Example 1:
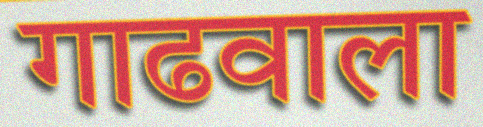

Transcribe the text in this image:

गाढवाला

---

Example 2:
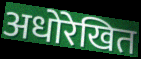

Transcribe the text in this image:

अधोरेखित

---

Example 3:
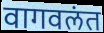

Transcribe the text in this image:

वागवलंत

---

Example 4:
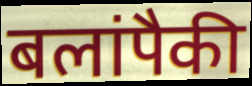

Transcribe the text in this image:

बलांपैकी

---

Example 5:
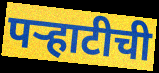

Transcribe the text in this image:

पऱ्हाटीची